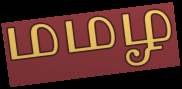
மமழ